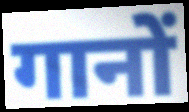
गानों